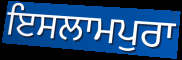
ਇਸਲਾਮਪੁਰਾ